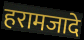
हरामजादे